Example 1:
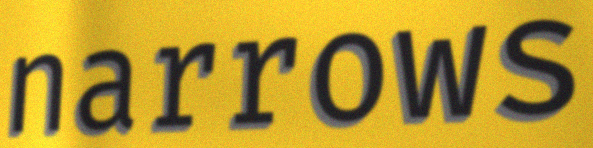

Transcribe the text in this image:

narrows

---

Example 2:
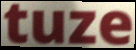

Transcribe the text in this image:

tuze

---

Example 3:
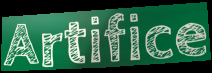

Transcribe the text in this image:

Artifice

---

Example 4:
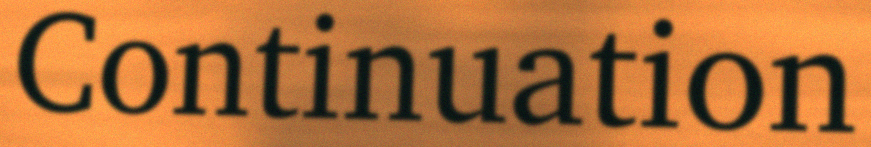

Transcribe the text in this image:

Continuation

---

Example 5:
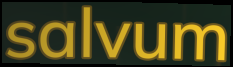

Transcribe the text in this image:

salvum